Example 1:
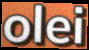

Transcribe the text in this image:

olei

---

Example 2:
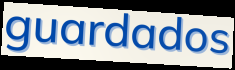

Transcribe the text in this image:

guardados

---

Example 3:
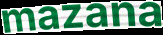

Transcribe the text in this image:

mazana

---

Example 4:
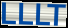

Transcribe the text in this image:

LLLT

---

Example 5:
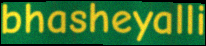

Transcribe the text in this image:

bhasheyalli